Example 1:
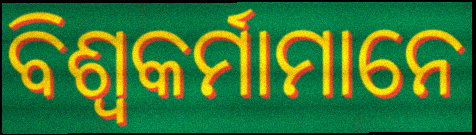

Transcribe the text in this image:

ବିଶ୍ଵକର୍ମାମାନେ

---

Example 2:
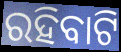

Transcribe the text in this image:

ରହିବାଟି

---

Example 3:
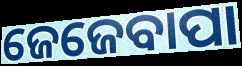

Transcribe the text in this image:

ଜେଜେବାପା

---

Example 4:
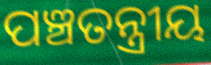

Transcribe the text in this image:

ପଞ୍ଚତନ୍ତ୍ରୀୟ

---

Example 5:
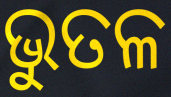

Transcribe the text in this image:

ଭୁତଳ